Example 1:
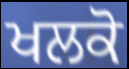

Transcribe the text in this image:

ਖਲਕੋ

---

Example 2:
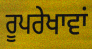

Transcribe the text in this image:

ਰੂਪਰੇਖਾਵਾਂ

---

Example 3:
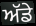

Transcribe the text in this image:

ਅੱਡੇ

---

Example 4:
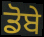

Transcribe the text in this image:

ਡੋਬੇ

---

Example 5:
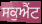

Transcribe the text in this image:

ਸਕੁਐਂਟ